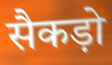
सैकड़ो